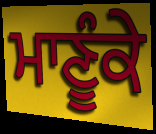
ਮਾਣੂੰਕੇ